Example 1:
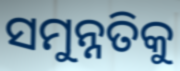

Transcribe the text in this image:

ସମୁନ୍ନତିକୁ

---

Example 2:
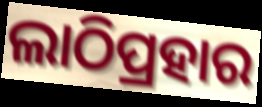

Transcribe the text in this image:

ଲାଠିପ୍ରହାର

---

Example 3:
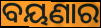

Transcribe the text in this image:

ବୟଣାର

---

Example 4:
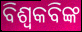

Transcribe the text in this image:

ବିଶ୍ୱକବିଙ୍କ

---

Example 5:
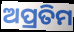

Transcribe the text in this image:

ଅପ୍ରତିମ